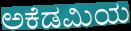
ಅಕೆಡಮಿಯ